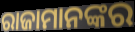
ରାଜାମାନଙ୍କର